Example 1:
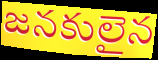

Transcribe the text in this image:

జనకులైన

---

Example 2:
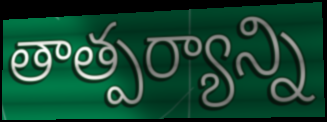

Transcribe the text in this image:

తాత్పర్యాన్ని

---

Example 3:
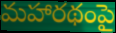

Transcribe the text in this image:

మహారథంపై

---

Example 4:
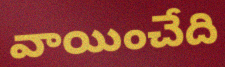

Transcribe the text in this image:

వాయించేది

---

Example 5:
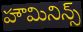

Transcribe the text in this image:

హౌమినిన్స్